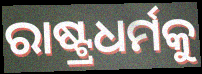
ରାଷ୍ଟ୍ରଧର୍ମକୁ